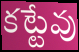
కట్టేవు